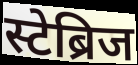
स्टेब्रिज